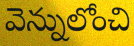
వెన్నులోంచి